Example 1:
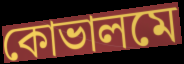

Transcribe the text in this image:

কোভালমে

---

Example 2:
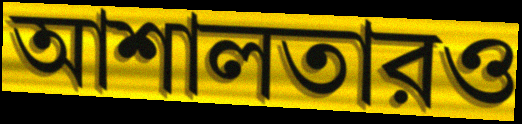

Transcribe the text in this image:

আশালতারও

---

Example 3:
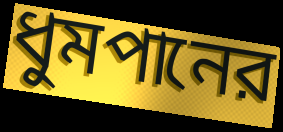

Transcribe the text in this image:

ধুমপানের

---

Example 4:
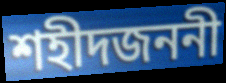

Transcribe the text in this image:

শহীদজননী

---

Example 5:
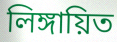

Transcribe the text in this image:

লিঙ্গায়িত